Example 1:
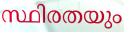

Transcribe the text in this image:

സ്ഥിരതയും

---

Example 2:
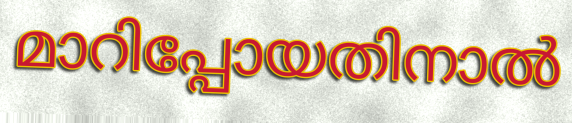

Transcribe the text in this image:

മാറിപ്പോയതിനാൽ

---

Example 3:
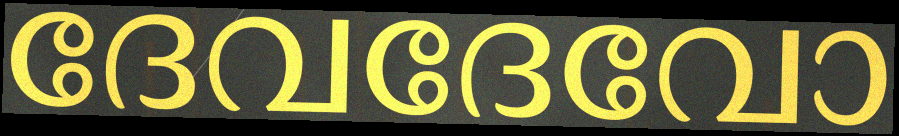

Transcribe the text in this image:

ദേവദേവോ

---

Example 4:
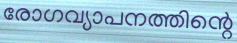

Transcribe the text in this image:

രോഗവ്യാപനത്തിന്റെ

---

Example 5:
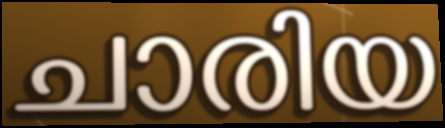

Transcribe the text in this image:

ചാരിയ